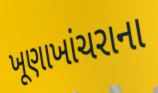
ખૂણાખાંચરાના